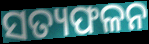
ସତ୍ୟଫଳନ